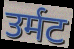
उर्मट